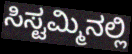
ಸಿಸ್ಟಮ್ಮಿನಲ್ಲಿ